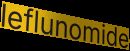
leflunomide